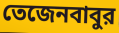
তেজেনবাবুর